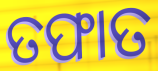
ତଫାତ